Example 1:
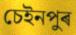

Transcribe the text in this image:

চেইনপুৰ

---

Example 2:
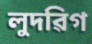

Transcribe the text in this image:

লুদৱিগ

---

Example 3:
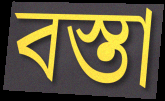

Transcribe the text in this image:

বস্তা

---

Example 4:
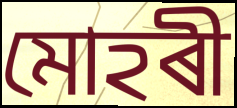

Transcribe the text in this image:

মোহৰী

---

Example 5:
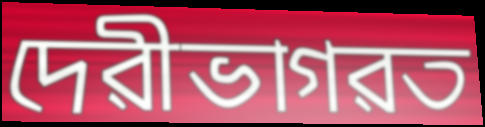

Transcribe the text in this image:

দেৱীভাগৱত